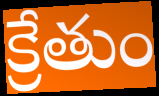
క్రేతుం